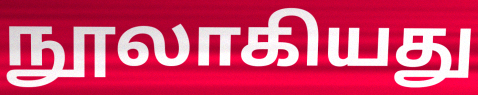
நூலாகியது